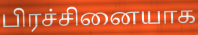
பிரச்சினையாக